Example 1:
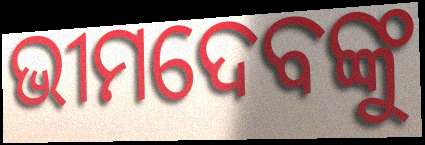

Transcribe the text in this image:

ଭୀମଦେବଙ୍କୁ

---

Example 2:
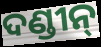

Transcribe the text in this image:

ଦଣ୍ଡୀନ୍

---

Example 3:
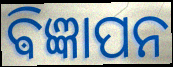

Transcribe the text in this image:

ଵିଜ୍ଞାପନ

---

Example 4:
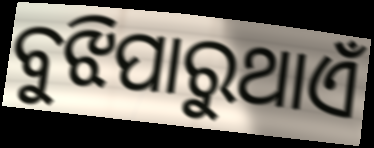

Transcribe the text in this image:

ବୁଝିପାରୁଥାଏଁ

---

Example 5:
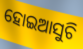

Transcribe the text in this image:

ହୋଇଆସୁଚି